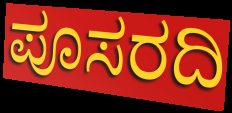
ಪೂಸರದಿ